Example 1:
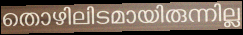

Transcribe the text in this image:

തൊഴിലിടമായിരുന്നില്ല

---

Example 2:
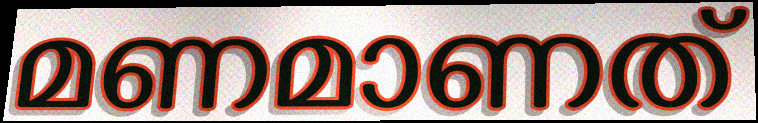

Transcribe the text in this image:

മണമാണത്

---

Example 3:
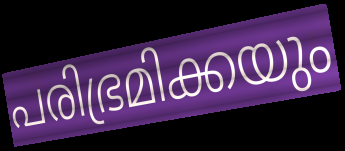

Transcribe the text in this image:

പരിഭ്രമിക്കയും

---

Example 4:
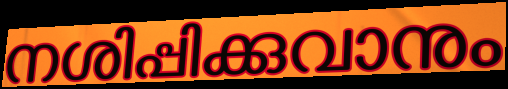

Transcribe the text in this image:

നശിപ്പിക്കുവാനും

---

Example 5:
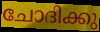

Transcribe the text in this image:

ചോദിക്കു